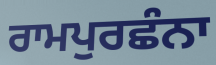
ਰਾਮਪੁਰਛੰਨਾ